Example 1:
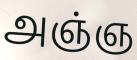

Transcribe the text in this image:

அஞ்ஞ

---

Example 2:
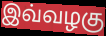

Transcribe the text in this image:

இவ்வழகு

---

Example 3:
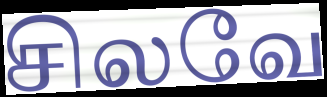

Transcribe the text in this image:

சிலவே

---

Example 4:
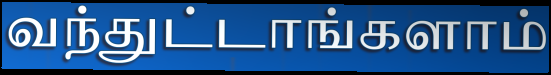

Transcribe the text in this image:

வந்துட்டாங்களாம்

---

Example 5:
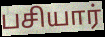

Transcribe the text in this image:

பசியார்